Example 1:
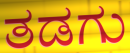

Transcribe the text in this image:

ತಡಗು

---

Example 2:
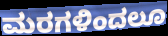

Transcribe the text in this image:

ಮರಗಳಿಂದಲೂ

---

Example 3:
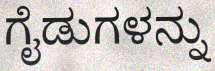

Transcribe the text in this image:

ಗೈಡುಗಳನ್ನು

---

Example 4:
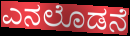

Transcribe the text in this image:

ಎನಲೊಡನೆ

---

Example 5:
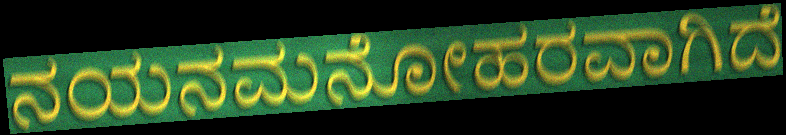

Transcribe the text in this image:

ನಯನಮನೋಹರವಾಗಿದೆ